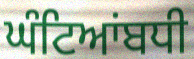
ਘੰਟਿਆਂਬਧੀ